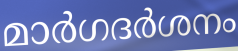
മാർഗദർശനം